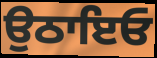
ਉਠਾਇਓ